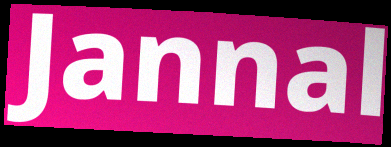
Jannal